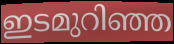
ഇടമുറിഞ്ഞ